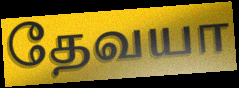
தேவயா